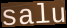
salu